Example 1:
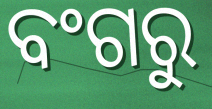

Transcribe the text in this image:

ବଂଗରୁ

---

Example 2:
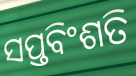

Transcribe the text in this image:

ସପ୍ତବିଂଶତି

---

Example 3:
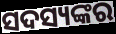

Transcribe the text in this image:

ସଦସ୍ୟଙ୍କର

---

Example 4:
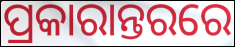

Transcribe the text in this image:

ପ୍ରକାରାନ୍ତରରେ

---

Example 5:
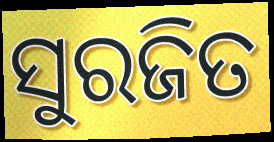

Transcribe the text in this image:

ସୁରଜିତ